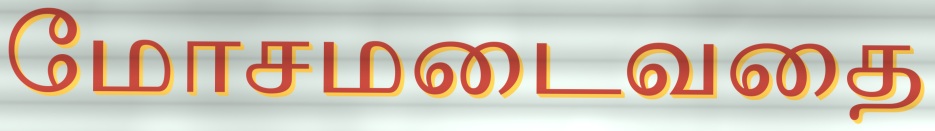
மோசமடைவதை